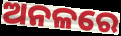
ଅନଳରେ